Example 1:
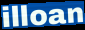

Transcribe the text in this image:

illoan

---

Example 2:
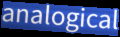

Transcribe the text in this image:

analogical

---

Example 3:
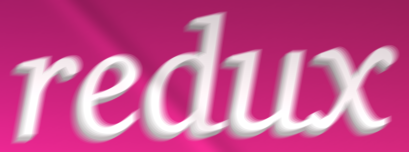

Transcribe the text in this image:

redux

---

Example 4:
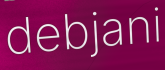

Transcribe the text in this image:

debjani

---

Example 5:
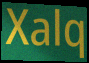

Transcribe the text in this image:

Xalq